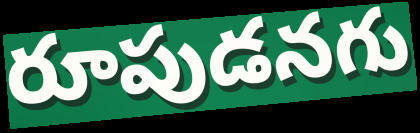
రూపుడనగు